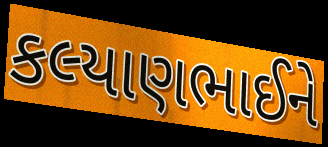
કલ્યાણભાઈને